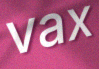
vax